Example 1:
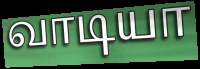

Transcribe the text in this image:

வாடியா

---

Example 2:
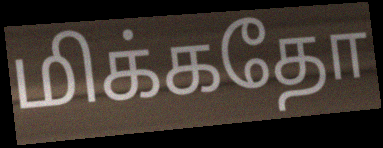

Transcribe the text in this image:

மிக்கதோ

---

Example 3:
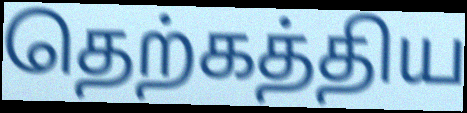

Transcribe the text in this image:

தெற்கத்திய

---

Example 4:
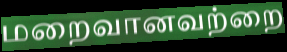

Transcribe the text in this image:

மறைவானவற்றை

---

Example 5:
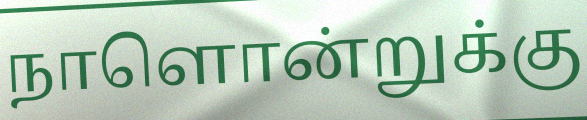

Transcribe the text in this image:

நாளொன்றுக்கு